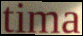
tima